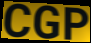
CGP